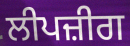
ਲੀਪਜ਼ੀਗ